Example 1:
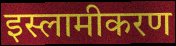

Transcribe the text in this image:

इस्लामीकरण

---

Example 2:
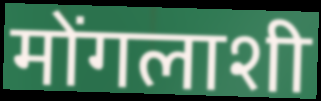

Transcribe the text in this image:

मोंगलाशी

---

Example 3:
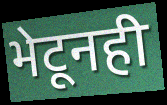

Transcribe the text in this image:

भेटूनही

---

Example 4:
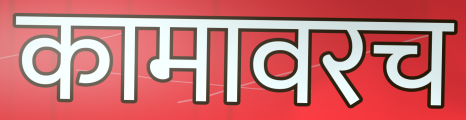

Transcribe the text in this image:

कामावरच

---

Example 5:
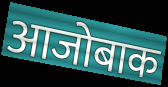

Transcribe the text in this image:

आजोबाक